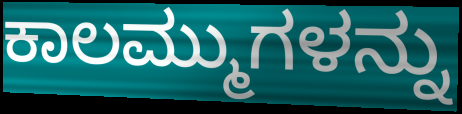
ಕಾಲಮ್ಮುಗಳನ್ನು